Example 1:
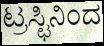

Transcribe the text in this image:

ಟ್ರಸ್ಟಿನಿಂದ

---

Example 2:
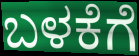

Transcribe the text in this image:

ಬಳಕೆಗೆ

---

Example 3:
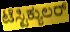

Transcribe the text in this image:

ಟೆಸ್ಟಿಕ್ಯುಲರ್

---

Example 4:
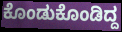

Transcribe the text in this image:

ಕೊಂಡುಕೊಂಡಿದ್ದ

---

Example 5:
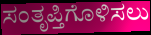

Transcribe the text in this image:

ಸಂತೃಪ್ತಿಗೊಳಿಸಲು